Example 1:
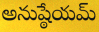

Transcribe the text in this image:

అనుష్ఠేయమ్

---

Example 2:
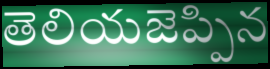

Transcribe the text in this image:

తెలియజెప్పిన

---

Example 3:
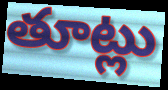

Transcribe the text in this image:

తూట్లు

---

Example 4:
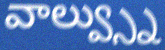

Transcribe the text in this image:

వాల్వ్స్ను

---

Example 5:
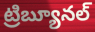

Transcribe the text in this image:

ట్రిబ్యూనల్